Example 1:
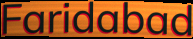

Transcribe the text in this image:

Faridabad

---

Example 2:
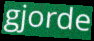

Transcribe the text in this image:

gjorde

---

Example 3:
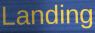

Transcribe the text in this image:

Landing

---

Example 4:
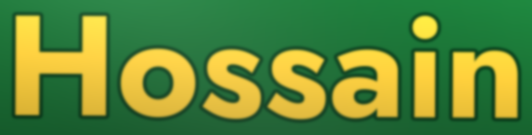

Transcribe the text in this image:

Hossain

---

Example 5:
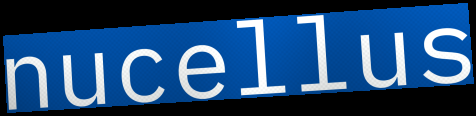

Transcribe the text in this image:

nucellus